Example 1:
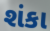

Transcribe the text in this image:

શંકા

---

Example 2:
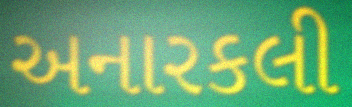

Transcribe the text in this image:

અનારકલી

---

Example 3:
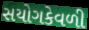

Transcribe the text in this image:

સયોગકેવળી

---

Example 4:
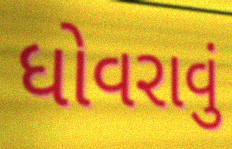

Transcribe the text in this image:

ધોવરાવું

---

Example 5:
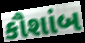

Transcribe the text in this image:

કૌશાંબ